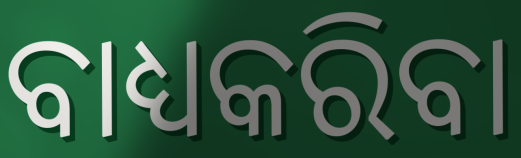
ବାଧ୍ୟକରିବା